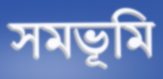
সমভূমি